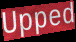
Upped